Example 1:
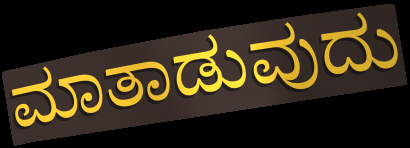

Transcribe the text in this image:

ಮಾತಾಡುವುದು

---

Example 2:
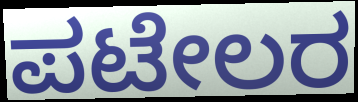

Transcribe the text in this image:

ಪಟೇಲರ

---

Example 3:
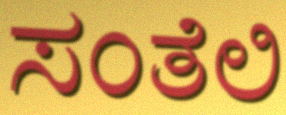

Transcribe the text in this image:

ಸಂತೆಲಿ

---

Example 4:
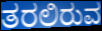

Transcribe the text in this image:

ತರಲಿರುವ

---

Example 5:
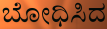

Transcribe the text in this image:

ಬೋಧಿಸಿದ